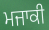
ਮਜਾਕੀ